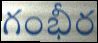
గంభీర